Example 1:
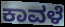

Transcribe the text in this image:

ಕಾವಳೆ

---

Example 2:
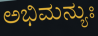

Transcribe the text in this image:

ಅಭಿಮನ್ಯುಃ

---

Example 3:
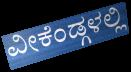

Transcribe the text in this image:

ವೀಕೆಂಡ್ಗಳಲ್ಲಿ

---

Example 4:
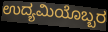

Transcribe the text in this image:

ಉದ್ಯಮಿಯೊಬ್ಬರ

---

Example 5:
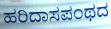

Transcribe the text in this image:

ಹರಿದಾಸಪಂಥದ